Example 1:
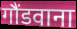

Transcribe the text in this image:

गौंडवाना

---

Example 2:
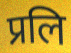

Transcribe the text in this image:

प्रलि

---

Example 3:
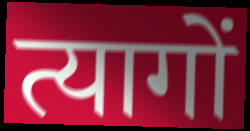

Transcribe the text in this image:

त्यागों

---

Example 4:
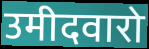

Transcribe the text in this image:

उमीदवारो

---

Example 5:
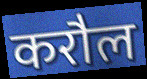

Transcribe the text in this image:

करौल